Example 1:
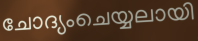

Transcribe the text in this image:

ചോദ്യംചെയ്യലായി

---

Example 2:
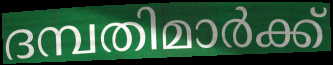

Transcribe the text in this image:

ദമ്പതിമാർക്ക്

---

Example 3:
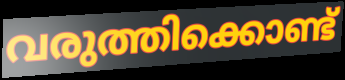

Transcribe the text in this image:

വരുത്തിക്കൊണ്ട്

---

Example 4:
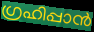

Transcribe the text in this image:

ഗ്രഹിപ്പാൻ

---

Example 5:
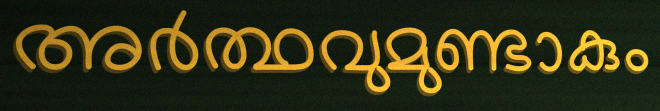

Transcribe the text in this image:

അർത്ഥവുമുണ്ടാകും